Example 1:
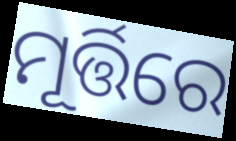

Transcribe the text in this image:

ମୂର୍ତ୍ତିରେ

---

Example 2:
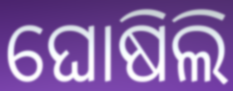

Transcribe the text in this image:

ଘୋଷିଲି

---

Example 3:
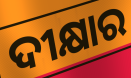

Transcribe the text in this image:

ଦୀକ୍ଷାର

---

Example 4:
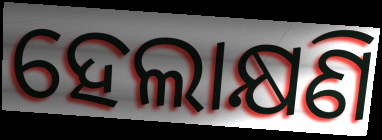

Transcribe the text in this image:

ହେଲାକ୍ଷଣି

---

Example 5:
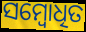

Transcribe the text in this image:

ସମ୍ବୋଧିତ